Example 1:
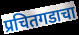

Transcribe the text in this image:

प्रचितगडाचा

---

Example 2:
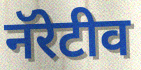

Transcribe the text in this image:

नॅरेटीव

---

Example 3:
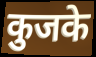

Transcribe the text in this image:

कुजके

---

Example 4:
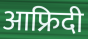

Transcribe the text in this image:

आफ्रिदी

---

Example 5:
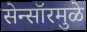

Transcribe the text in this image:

सेन्सॉरमुळे